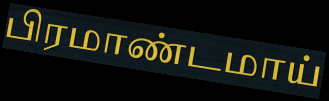
பிரமாண்டமாய்